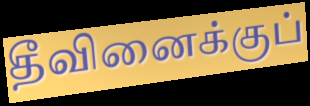
தீவினைக்குப்